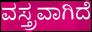
ವಸ್ತ್ರವಾಗಿದೆ